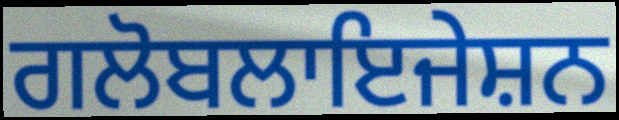
ਗਲੋਬਲਾਇਜੇਸ਼ਨ